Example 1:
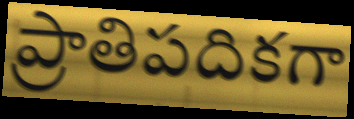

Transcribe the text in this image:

ప్రాతిపదికగా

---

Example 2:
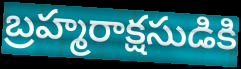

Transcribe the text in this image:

బ్రహ్మరాక్షసుడికి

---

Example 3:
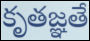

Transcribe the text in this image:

కృతజ్ఞతే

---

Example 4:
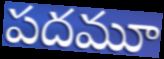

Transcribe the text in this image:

పదమూ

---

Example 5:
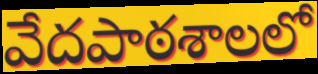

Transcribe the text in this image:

వేదపాఠశాలలో